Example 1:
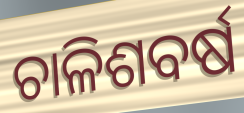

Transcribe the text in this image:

ଚାଳିଶବର୍ଷ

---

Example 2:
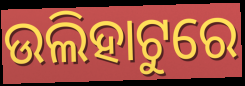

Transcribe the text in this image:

ଉଲିହାଟୁରେ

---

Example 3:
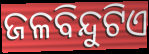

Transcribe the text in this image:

ଜଳବିନ୍ଦୁଟିଏ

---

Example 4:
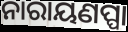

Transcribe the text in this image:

ନାରାୟଣପ୍ପା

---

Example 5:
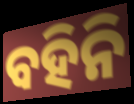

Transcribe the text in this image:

ବହିନି